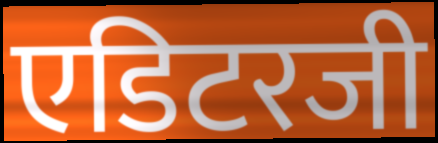
एडिटरजी